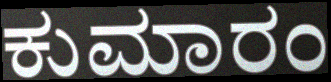
ಕುಮಾರಂ